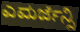
ಎಮರ್ಜೆನ್ಸಿ